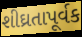
શીઘ્રતાપૂર્વક